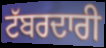
ਟੱਬਰਦਾਰੀ